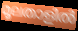
മൂലതാളിൽ